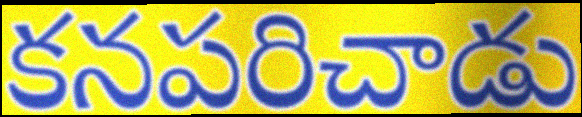
కనపరిచాడు